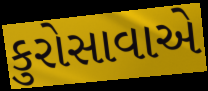
કુરોસાવાએ